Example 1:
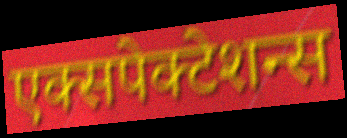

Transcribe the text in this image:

एक्सपेक्टेशन्स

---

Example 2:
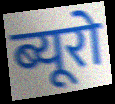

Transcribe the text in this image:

ब्‍यूरो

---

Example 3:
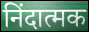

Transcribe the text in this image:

निंदात्मक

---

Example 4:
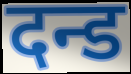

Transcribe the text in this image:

दन्ड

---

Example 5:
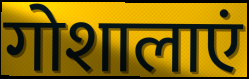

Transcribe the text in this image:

गोशालाएं